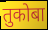
तुकोबा